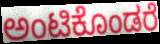
ಅಂಟಿಕೊಂಡರೆ